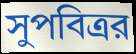
সুপবিত্রর